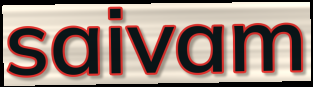
saivam